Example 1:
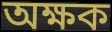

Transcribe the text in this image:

অক্ষক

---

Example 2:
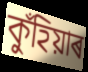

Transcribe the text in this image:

কুঁহিয়াৰ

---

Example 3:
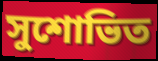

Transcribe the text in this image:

সুশোভিত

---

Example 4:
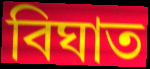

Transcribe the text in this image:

বিঘাত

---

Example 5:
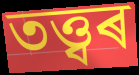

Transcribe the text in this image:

তত্ত্বৰ